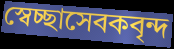
স্বেচ্ছাসেবকবৃন্দ